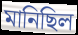
মানিছিল